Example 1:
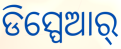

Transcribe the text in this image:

ଡିସ୍ପେଆର୍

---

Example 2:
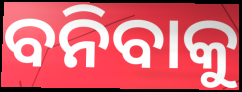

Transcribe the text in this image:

ବନିବାକୁ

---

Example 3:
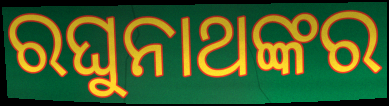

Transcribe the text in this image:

ରଘୁନାଥଙ୍କର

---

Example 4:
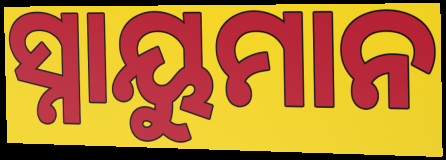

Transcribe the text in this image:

ସ୍ନାୟୁମାନ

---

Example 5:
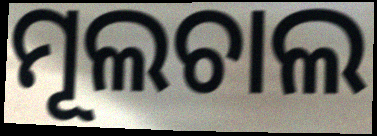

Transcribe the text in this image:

ମୂଲଚାଲ